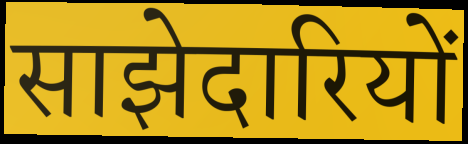
साझेदारियों